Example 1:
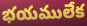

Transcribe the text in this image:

భయములేక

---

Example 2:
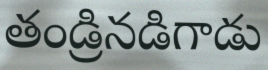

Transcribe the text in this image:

తండ్రినడిగాడు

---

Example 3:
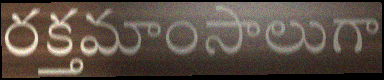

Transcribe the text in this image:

రక్తమాంసాలుగా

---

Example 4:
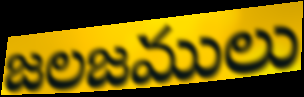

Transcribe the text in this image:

జలజములు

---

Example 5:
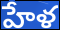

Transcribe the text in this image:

హేళ